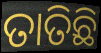
ତାତିଛି